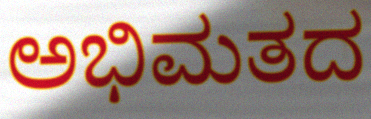
ಅಭಿಮತದ